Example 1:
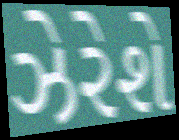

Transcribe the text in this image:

ઝેરેશે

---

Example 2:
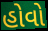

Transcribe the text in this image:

હોવો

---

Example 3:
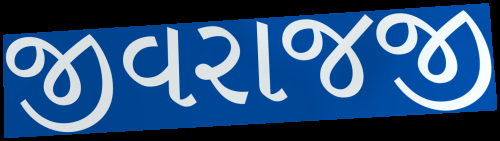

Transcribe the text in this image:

જીવરાજજી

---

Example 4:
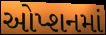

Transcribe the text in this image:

ઓપ્શનમાં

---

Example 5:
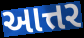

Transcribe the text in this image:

આત્તર